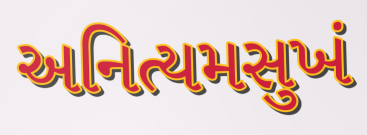
અનિત્યમસુખં